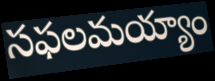
సఫలమయ్యాం